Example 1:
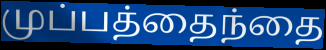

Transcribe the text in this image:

முப்பத்தைந்தை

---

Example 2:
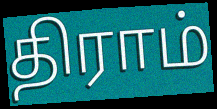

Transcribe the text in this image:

திராம்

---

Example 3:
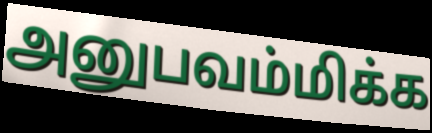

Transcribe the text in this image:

அனுபவம்மிக்க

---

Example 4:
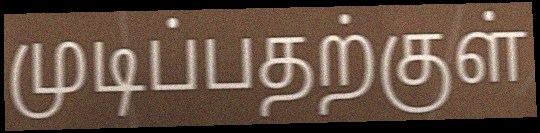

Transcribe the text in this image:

முடிப்பதற்குள்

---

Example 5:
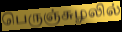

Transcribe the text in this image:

பெருஞ்சுழலில்